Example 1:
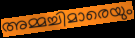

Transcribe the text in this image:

അമ്മച്ചിമാരെയും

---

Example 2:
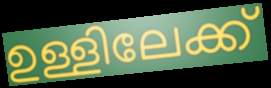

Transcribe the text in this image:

ഉള്ളിലേക്ക്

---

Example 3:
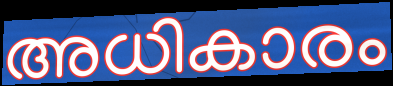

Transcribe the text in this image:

അധികാരം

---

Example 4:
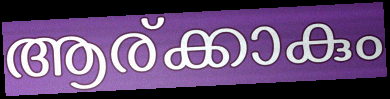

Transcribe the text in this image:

ആര്ക്കാകും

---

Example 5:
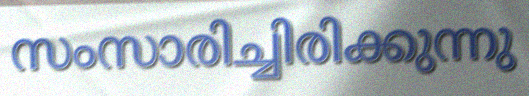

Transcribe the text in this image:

സംസാരിച്ചിരിക്കുന്നു